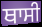
ਥਾਸੀ